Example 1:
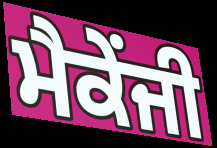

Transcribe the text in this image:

ਮੈਕੇਂਜੀ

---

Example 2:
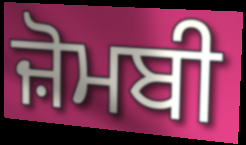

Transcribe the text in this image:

ਜ਼ੋਮਬੀ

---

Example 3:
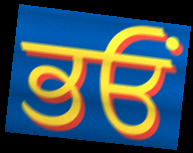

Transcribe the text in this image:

ਭਓਂ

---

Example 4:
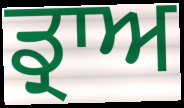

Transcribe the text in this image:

ਡ੍ਰਾਅ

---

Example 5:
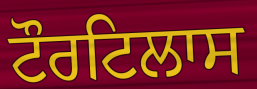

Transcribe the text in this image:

ਟੌਰਟਿਲਾਸ